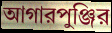
আগারপুঞ্জির